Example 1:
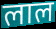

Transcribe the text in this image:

लाल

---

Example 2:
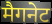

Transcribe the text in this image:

मैगनेट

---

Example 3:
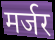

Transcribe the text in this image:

मर्जर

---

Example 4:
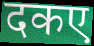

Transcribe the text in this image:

दकए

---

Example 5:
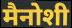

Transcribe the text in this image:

मैनोशी